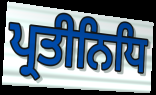
ਪ੍ਰਤੀਨਿਧਿ